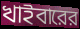
খাইবারের